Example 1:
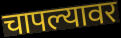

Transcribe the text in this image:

चापल्यावर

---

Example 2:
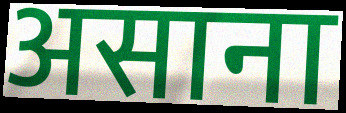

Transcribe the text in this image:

असाना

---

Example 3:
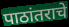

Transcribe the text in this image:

पाठांतराचे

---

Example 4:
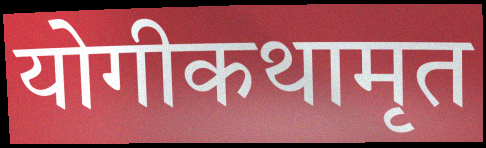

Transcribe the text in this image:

योगीकथामृत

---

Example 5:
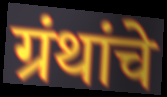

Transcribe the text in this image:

ग्रंथांचे